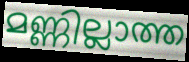
മണ്ണില്ലാത്ത